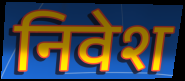
निवेश